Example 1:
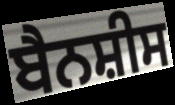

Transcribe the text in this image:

ਬੈਨਸ਼ੀਸ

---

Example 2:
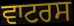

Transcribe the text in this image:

ਵਾਟਰਸ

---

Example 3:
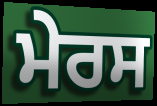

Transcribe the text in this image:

ਮੇਰਸ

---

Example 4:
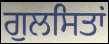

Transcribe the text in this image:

ਗੁਲਸਿਤਾਂ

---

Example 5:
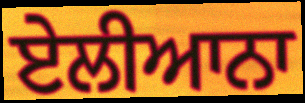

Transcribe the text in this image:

ਏਲੀਆਨਾ